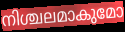
നിശ്ചലമാകുമോ